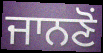
ਜਾਨਣੋਂ